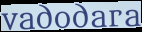
vadodara